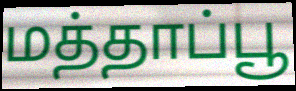
மத்தாப்பூ